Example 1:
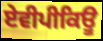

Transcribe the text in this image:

ਏਵੀਪੀਕਿਊ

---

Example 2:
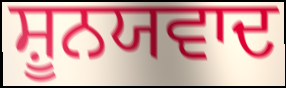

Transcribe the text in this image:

ਸ਼ੂਨਯਵਾਦ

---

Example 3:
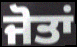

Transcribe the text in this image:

ਜੋਤਾਂ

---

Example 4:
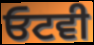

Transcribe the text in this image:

ਓਟਵੀ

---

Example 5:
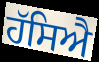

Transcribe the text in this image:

ਹੱਸਿਐ